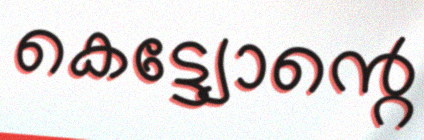
കെട്ട്യോന്റെ